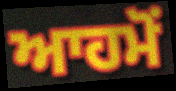
ਆਹਮੋਂ